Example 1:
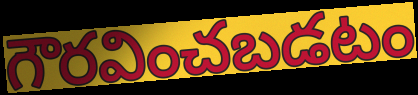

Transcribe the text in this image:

గౌరవించబడటం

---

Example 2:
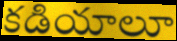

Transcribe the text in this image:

కడియాలూ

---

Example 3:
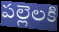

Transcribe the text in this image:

పల్లెలకి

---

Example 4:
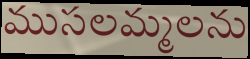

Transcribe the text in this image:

ముసలమ్మలను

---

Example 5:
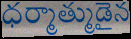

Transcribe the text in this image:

ధర్మాత్ముడైన